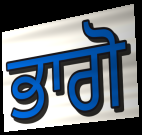
ਭਾਗੋ